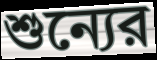
শুন্যের